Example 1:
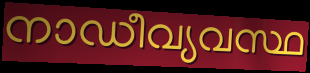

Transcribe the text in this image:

നാഡീവ്യവസ്ഥ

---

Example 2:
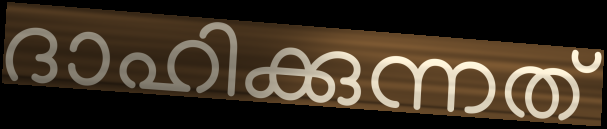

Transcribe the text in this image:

ദാഹിക്കുന്നത്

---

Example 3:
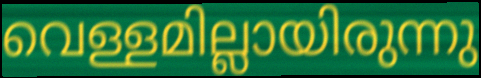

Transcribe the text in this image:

വെള്ളമില്ലായിരുന്നു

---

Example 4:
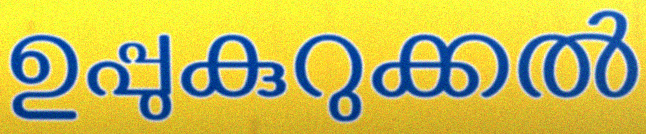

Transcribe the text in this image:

ഉപ്പുകുറുക്കൽ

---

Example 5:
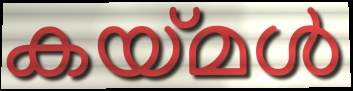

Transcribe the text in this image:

കയ്മൾ